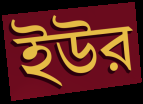
ইউর